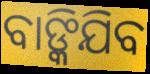
ବାଙ୍କିଯିବ